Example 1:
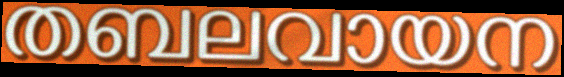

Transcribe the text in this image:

തബലവായന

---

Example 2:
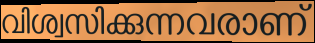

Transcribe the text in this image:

വിശ്വസിക്കുന്നവരാണ്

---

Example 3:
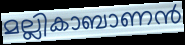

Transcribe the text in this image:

മല്ലികാബാണൻ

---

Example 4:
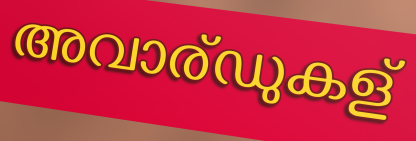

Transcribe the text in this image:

അവാര്ഡുകള്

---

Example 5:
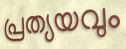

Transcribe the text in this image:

പ്രത്യയവും